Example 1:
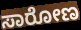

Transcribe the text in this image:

ಸಾರೋಣ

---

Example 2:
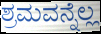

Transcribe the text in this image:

ಶ್ರಮವನ್ನೆಲ್ಲ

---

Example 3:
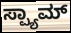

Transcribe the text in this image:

ಸ್ಪ್ಯಾಮ್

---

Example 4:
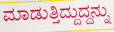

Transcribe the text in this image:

ಮಾಡುತ್ತಿದ್ದುದ್ದನ್ನು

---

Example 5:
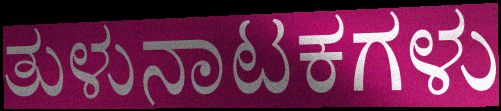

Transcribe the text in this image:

ತುಳುನಾಟಕಗಳು